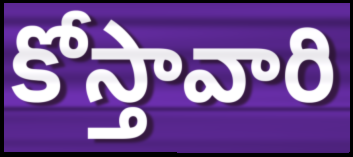
కోస్తావారి